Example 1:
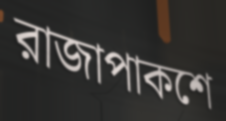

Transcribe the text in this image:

রাজাপাকশে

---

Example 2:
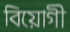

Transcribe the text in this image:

বিয়োগী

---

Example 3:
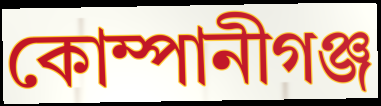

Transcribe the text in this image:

কোম্পানীগঞ্জ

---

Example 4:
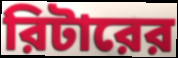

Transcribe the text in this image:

রিটারের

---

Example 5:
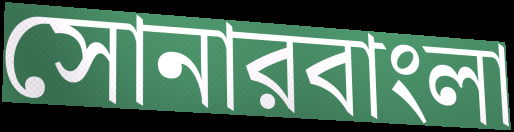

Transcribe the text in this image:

সোনারবাংলা